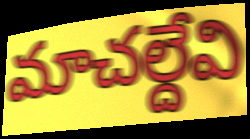
మాచల్దేవి